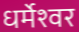
धर्मेश्वर